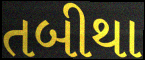
તબીથા